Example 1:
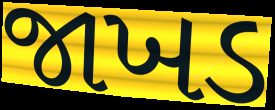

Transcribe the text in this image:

જાખડ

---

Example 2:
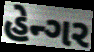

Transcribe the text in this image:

હેન્ગર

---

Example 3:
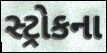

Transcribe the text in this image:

સ્ટ્રોકના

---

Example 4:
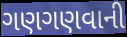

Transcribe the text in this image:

ગણગણવાની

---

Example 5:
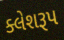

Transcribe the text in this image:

ક્લેશરૂપ